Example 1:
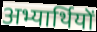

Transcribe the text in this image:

अभ्‍यार्थियों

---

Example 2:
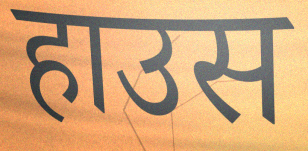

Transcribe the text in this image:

हाउस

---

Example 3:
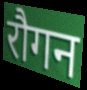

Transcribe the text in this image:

रौगन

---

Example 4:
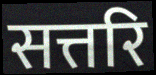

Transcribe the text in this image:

सत्तरि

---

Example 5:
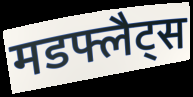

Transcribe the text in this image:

मडफ्लैट्स